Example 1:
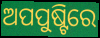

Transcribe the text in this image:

ଅପପୁଷ୍ଟିରେ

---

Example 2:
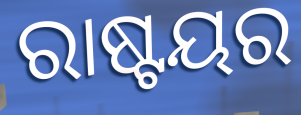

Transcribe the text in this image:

ରାଷ୍ଟୟର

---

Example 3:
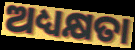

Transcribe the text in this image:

ଅଧ୍ୟକ୍ଷତା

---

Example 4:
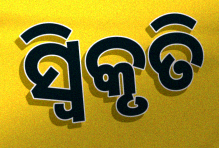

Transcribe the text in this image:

ସ୍ଵିକୃତି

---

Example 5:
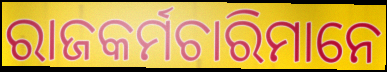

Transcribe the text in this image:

ରାଜକର୍ମଚାରିମାନେ